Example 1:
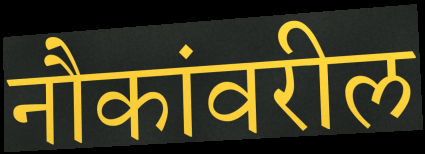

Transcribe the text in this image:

नौकांवरील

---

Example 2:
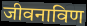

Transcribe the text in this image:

जीवनाविण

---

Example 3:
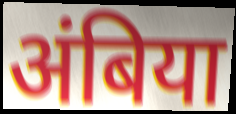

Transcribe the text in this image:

अंबिया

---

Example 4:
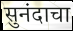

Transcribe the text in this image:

सुनंदाचा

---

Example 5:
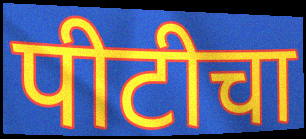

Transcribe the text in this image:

पीटीचा